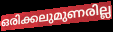
ഒരിക്കലുമുണരില്ല